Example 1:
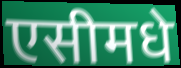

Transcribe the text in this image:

एसीमधे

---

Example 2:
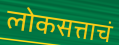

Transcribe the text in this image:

लोकसत्ताचं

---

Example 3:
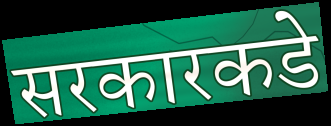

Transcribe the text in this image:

सरकारकडे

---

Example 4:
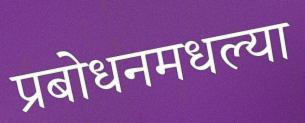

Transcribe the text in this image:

प्रबोधनमधल्या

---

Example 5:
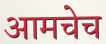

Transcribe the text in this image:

आमचेच